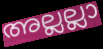
അല്ലല്ലാ